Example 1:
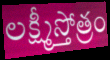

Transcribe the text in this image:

లక్ష్మీస్తోత్రం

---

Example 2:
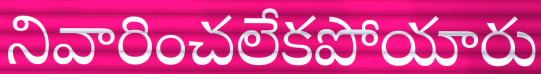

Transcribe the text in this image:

నివారించలేకపోయారు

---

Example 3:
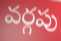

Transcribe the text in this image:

వర్గపు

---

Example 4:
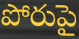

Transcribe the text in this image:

పోరుపై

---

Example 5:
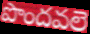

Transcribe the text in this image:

పొందవలె